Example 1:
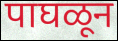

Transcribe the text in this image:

पाघळून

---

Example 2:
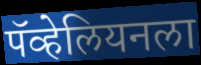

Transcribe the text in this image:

पॅव्हेलियनला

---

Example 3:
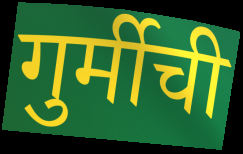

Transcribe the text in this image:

गुर्मीची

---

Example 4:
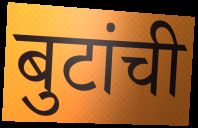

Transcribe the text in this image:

बुटांची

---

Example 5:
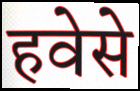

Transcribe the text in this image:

हवेसे